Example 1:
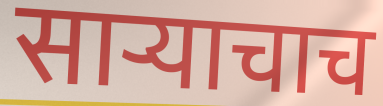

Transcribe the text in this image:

साऱ्याचाच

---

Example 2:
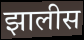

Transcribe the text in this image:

झालीस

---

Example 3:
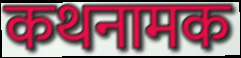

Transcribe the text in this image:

कथनामक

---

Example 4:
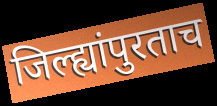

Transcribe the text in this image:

जिल्ह्यांपुरताच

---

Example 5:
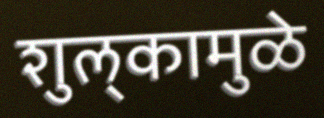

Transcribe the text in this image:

शुल्कामुळे